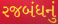
રજબંધનું